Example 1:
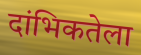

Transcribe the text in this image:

दांभिकतेला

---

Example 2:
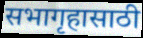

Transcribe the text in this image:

सभागृहासाठी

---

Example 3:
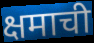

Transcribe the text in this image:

क्षमाची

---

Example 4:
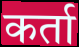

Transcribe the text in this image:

कर्ता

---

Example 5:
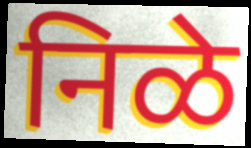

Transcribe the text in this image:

निळे